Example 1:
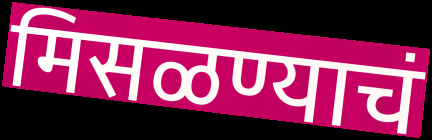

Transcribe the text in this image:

मिसळण्याचं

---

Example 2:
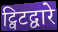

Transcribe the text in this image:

ट्विटद्वारे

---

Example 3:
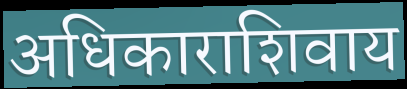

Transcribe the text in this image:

अधिकाराशिवाय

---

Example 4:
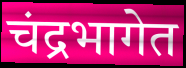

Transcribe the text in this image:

चंद्रभागेत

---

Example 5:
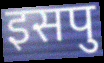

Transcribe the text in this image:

इसपु